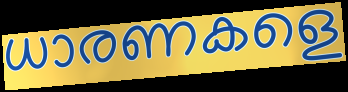
ധാരണകളെ